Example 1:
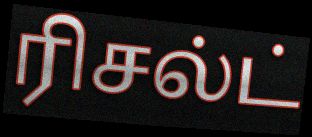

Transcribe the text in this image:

ரிசல்ட்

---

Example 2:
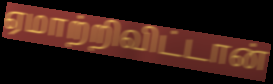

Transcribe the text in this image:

ஏமாற்றிவிட்டான்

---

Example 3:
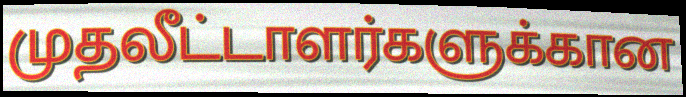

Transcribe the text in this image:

முதலீட்டாளர்களுக்கான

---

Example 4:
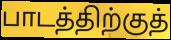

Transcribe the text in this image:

பாடத்திற்குத்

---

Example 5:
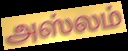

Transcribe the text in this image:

அஸ்லம்